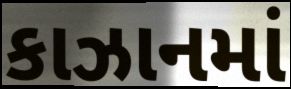
કાઝાનમાં